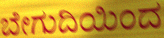
ಬೇಗುದಿಯಿಂದ